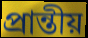
প্রান্তীয়